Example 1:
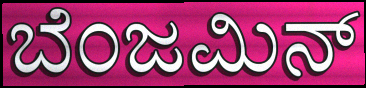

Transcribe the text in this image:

ಬೆಂಜಮಿನ್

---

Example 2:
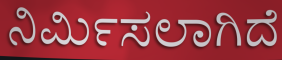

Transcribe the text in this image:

ನಿರ್ಮಿಸಲಾಗಿದೆ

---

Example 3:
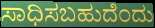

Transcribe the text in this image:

ಸಾಧಿಸಬಹುದೆಂದು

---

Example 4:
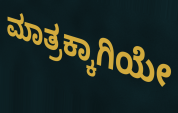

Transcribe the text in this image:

ಮಾತ್ರಕ್ಕಾಗಿಯೇ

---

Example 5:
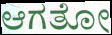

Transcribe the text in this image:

ಆಗತೋ